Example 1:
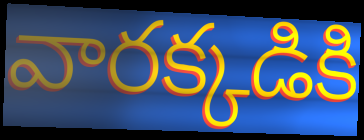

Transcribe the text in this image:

వారక్కడికి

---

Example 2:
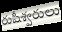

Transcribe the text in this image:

రుషీశ్వరులు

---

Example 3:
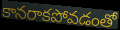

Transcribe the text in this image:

కానరాకపోవడంతో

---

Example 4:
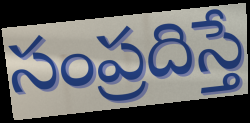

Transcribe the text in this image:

సంప్రదిస్తే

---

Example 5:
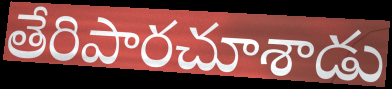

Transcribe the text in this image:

తేరిపారచూశాడు